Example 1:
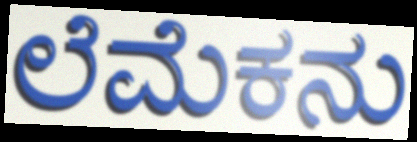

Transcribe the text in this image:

ಲೆಮೆಕನು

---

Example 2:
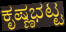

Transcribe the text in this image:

ಕೃಷ್ಣಭಟ್ಟ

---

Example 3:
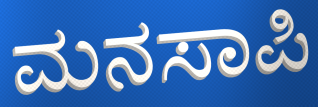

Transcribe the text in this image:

ಮನಸಾಪಿ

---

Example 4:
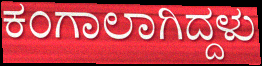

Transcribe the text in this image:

ಕಂಗಾಲಾಗಿದ್ದಳು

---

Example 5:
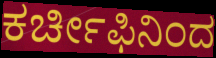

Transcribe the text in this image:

ಕರ್ಚೀಫಿನಿಂದ